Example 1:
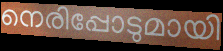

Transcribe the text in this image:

നെരിപ്പോടുമായി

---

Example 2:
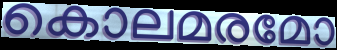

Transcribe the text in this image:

കൊലമരമോ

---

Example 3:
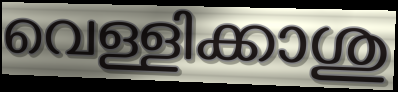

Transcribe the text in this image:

വെള്ളിക്കാശു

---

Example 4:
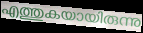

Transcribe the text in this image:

എത്തുകയായിരുന്നു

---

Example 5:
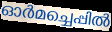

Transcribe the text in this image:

ഓർമച്ചെപ്പിൽ